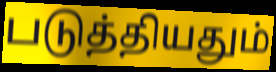
படுத்தியதும்